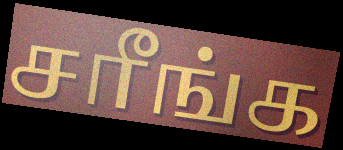
சரீங்க